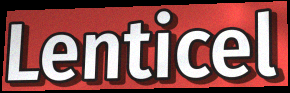
Lenticel